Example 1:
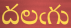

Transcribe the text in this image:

దలఁగు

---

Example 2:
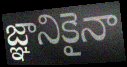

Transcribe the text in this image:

జ్ఞానికైనా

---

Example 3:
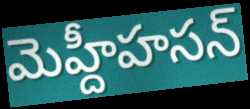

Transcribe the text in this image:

మెహ్దీహసన్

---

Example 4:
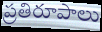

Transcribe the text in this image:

ప్రతిరూపాలు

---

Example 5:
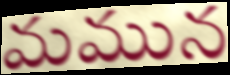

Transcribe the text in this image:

మమున